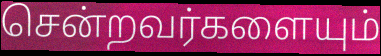
சென்றவர்களையும்